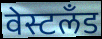
वेस्टलँड